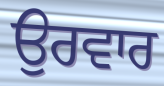
ਉਰਵਾਰ